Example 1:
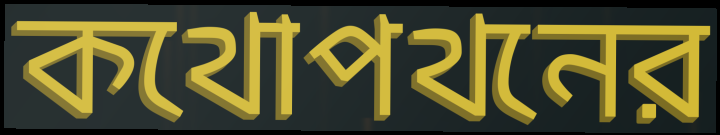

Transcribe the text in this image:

কথোপথনের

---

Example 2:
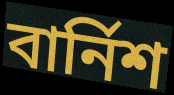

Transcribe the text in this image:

বার্নিশ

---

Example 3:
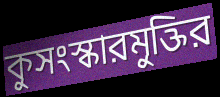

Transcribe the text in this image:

কুসংস্কারমুক্তির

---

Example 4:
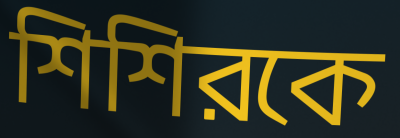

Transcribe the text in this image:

শিশিরকে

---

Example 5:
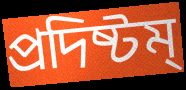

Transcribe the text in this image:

প্রদিষ্টম্